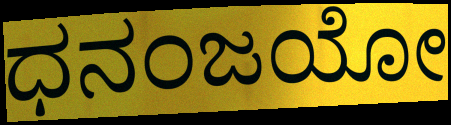
ಧನಂಜಯೋ